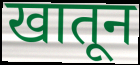
खातून